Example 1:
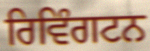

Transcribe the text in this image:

ਰਿਵਿੰਗਟਨ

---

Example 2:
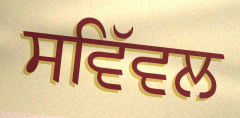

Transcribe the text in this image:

ਸਵਿੱਵਲ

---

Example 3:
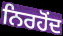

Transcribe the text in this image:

ਨਿਰਹੋਂਦ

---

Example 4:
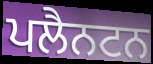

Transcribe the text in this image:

ਪਲੈਨਟਨ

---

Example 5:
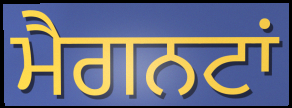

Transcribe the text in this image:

ਮੈਗਨਟਾਂ